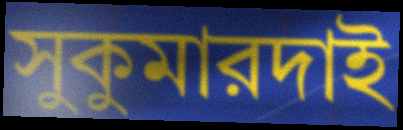
সুকুমারদাই